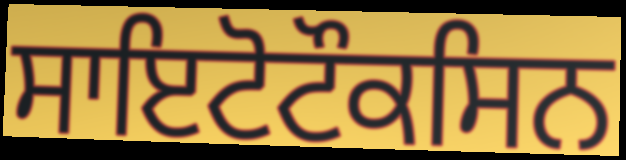
ਸਾਇਟੋਟੌਕਸਿਨ